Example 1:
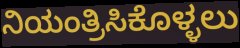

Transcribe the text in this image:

ನಿಯಂತ್ರಿಸಿಕೊಳ್ಳಲು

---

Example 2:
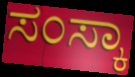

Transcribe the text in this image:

ಸಂಸ್ಕಾ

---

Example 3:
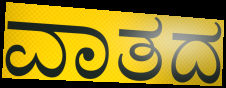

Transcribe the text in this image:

ವಾತದ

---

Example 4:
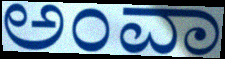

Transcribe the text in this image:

ಅಂವಾ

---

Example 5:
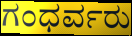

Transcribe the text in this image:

ಗಂಧರ್ವರು